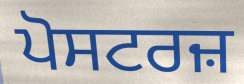
ਪੋਸਟਰਜ਼